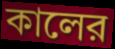
কালের